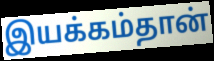
இயக்கம்தான்